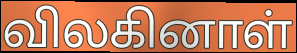
விலகினாள்